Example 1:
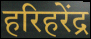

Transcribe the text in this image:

हरिहरेंद्र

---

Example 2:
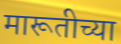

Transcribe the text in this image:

मारूतीच्या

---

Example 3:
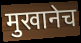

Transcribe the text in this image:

मुखानेच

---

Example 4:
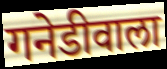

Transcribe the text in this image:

गनेडीवाला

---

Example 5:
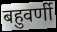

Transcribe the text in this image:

बहुवर्णी